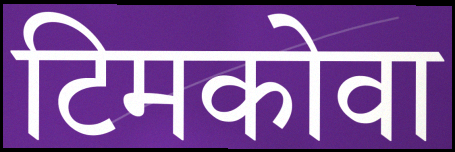
टिमकोवा